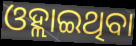
ଓହ୍ଲାଇଥିବା